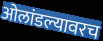
ओलांडल्यावरच